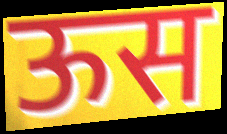
ऊस